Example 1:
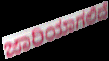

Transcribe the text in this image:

ಜಾರಿಯಾಗಲಿದೆ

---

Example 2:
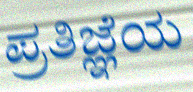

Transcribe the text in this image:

ಪ್ರತಿಜ್ಞೆಯ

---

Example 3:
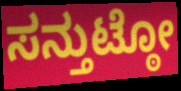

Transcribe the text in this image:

ಸನ್ತುಟ್ಠೋ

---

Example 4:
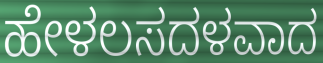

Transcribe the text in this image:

ಹೇಳಲಸದಳವಾದ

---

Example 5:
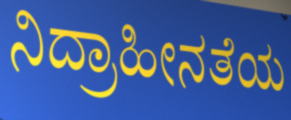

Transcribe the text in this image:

ನಿದ್ರಾಹೀನತೆಯ